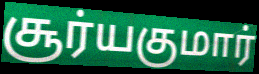
சூர்யகுமார்